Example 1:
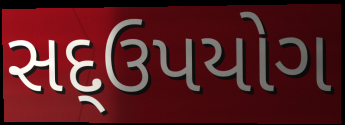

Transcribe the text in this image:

સદ્ઉપયોગ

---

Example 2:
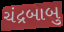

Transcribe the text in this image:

ચંદ્રબાબુ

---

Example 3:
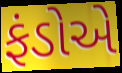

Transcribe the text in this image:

ફંડોએ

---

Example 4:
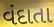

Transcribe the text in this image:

વંદાતા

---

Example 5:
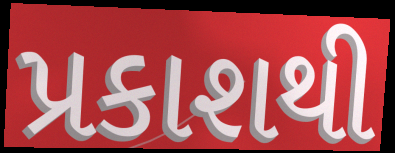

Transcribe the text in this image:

પ્રકાશથી